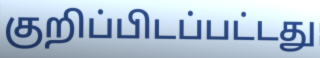
குறிப்பிடப்பட்டது